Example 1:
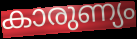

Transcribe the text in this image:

കാരുണ്യം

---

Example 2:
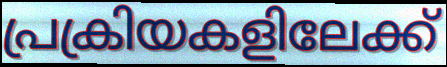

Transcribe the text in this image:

പ്രക്രിയകളിലേക്ക്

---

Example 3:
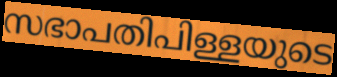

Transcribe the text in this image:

സഭാപതിപിള്ളയുടെ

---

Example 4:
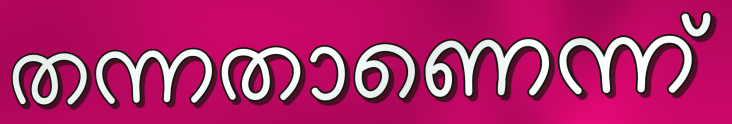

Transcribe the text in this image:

തന്നതാണെന്ന്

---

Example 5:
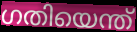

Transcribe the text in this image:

ഗതിയെന്ത്